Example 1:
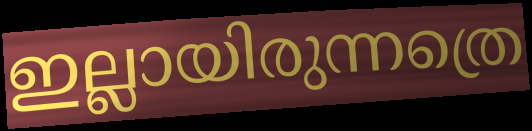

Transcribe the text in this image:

ഇല്ലായിരുന്നത്രെ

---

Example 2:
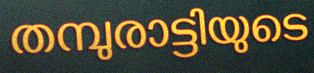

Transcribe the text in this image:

തമ്പുരാട്ടിയുടെ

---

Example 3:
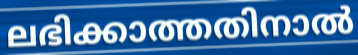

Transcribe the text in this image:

ലഭിക്കാത്തതിനാൽ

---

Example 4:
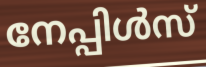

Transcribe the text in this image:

നേപ്പിൾസ്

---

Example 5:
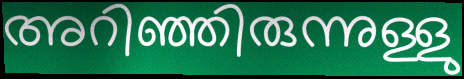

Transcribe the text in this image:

അറിഞ്ഞിരുന്നുള്ളു